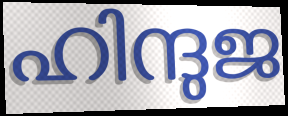
ഹിന്ദുജ